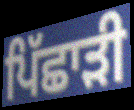
ਪਿੱਛਾੜੀ